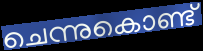
ചെന്നുകൊണ്ട്